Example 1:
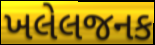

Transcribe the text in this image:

ખલેલજનક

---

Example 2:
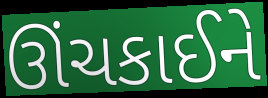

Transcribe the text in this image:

ઊંચકાઈને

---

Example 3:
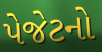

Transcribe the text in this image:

પેજેટનો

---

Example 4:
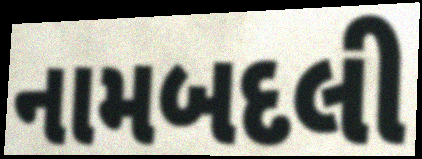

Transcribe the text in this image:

નામબદલી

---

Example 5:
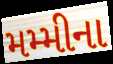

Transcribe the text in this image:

મમ્મીના